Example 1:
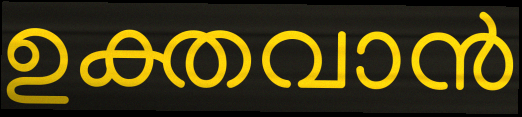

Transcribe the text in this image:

ഉക്തവാൻ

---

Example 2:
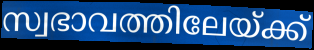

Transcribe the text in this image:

സ്വഭാവത്തിലേയ്ക്ക്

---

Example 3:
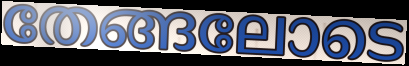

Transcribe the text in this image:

തേങ്ങലോടെ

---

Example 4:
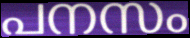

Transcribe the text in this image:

പനസം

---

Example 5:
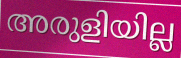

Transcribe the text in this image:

അരുളിയില്ല